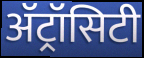
ॲट्रॉसिटी